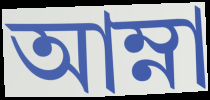
আম্না